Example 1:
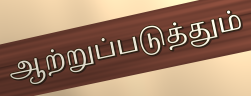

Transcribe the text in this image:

ஆற்றுப்படுத்தும்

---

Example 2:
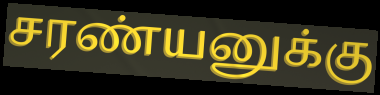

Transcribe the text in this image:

சரண்யனுக்கு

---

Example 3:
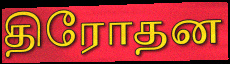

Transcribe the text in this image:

திரோதன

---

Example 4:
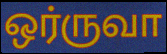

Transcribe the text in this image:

ஒர்ருவா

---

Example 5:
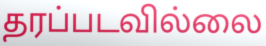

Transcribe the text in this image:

தரப்படவில்லை